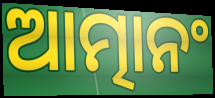
ଆତ୍ମାନଂ